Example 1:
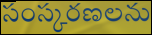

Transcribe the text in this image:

సంస్కరణలను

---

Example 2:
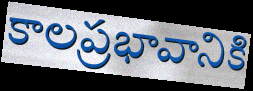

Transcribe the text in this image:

కాలప్రభావానికి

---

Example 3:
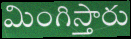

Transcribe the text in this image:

మింగిస్తారు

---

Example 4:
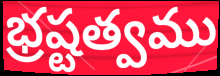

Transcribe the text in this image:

భ్రష్టత్వము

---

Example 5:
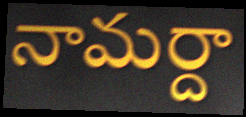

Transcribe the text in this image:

నామర్దా